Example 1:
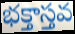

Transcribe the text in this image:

భక్తాస్తవ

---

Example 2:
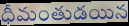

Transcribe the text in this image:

ధీమంతుడయిన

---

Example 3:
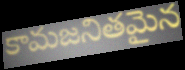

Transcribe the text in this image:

కామజనితమైన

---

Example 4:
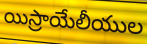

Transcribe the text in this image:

యిస్రాయేలీయుల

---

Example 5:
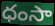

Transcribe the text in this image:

ధంసా